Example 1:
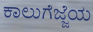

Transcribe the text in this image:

ಕಾಲುಗೆಜ್ಜೆಯ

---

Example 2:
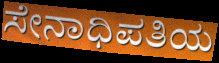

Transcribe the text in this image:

ಸೇನಾಧಿಪತಿಯ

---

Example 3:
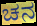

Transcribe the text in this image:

ಚನ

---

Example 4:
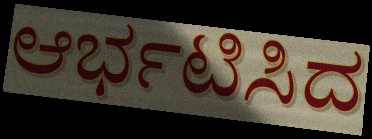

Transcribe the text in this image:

ಆರ್ಭಟಿಸಿದ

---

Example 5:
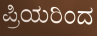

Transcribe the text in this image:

ಪ್ರಿಯರಿಂದ